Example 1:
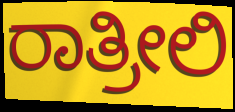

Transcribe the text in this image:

ರಾತ್ರೀಲಿ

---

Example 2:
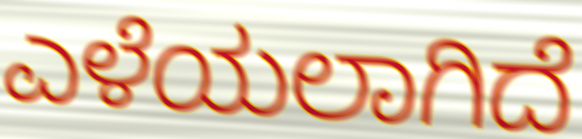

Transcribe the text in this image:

ಎಳೆಯಲಾಗಿದೆ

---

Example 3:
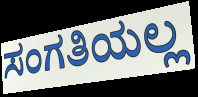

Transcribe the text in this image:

ಸಂಗತಿಯಲ್ಲ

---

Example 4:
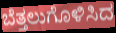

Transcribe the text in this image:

ಬೆತ್ತಲುಗೊಳಿಸಿದ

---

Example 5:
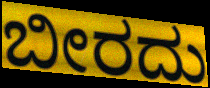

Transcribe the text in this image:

ಬೀರದು